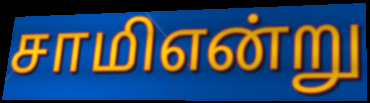
சாமிஎன்று